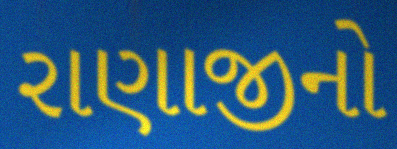
રાણાજીનો